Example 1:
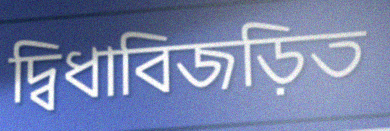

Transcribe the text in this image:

দ্বিধাবিজড়িত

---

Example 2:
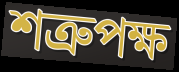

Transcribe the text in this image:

শত্রুপক্ষ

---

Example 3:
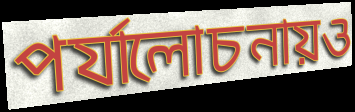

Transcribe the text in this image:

পর্যালোচনায়ও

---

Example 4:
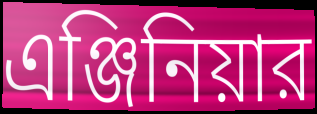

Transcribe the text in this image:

এঞ্জিনিয়ার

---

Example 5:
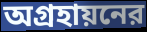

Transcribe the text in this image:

অগ্রহায়নের